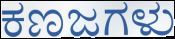
ಕಣಜಗಳು